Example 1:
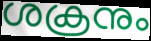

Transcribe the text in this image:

ശക്രനും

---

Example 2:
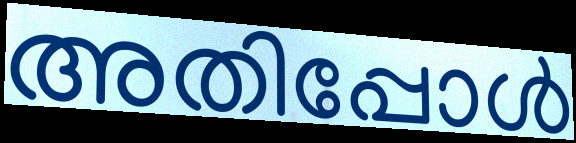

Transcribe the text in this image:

അതിപ്പോൾ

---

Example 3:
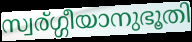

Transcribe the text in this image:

സ്വര്ഗ്ഗീയാനുഭൂതി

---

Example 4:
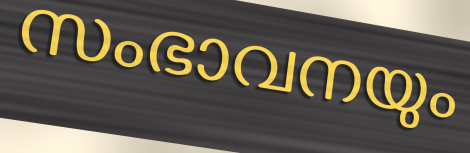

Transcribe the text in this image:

സംഭാവനയും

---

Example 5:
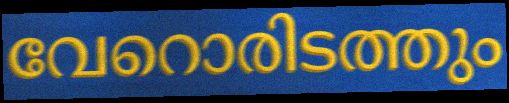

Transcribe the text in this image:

വേറൊരിടത്തും